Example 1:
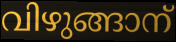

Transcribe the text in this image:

വിഴുങ്ങാന്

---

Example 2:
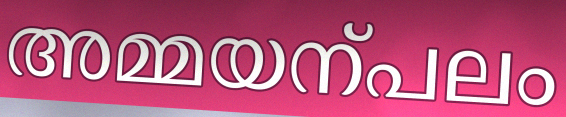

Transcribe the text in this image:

അമ്മയന്പലം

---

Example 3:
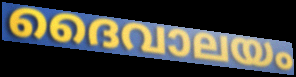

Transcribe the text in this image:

ദൈവാലയം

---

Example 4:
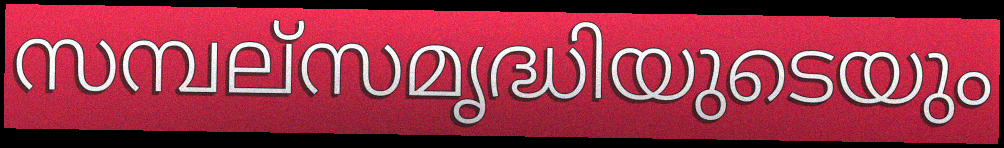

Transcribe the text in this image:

സമ്പല്സമൃദ്ധിയുടെയും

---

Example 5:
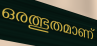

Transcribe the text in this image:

ഒരത്ഭുതമാണ്